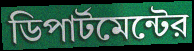
ডিপার্টমেন্টের